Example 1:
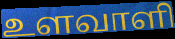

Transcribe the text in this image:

உளவாளி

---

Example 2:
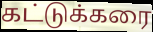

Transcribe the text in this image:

கட்டுக்கரை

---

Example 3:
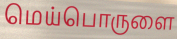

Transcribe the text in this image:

மெய்பொருளை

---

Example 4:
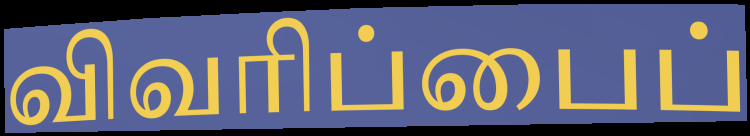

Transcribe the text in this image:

விவரிப்பைப்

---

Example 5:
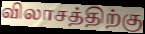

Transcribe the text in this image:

விலாசத்திற்கு